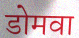
डोमवा